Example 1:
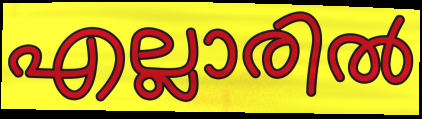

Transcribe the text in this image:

എല്ലാരിൽ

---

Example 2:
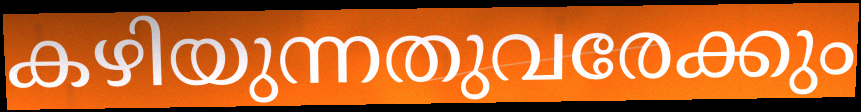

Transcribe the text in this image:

കഴിയുന്നതുവരേക്കും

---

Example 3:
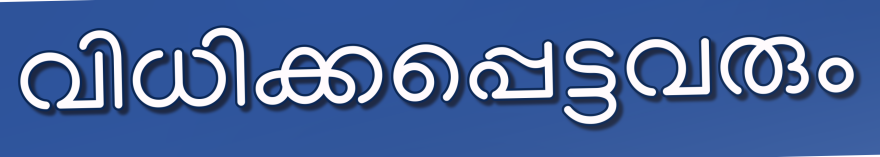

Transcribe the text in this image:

വിധിക്കപ്പെട്ടവരും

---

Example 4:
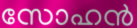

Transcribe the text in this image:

സോഹൻ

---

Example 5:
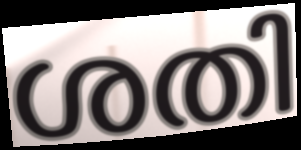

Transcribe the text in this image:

ശതി